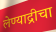
लेण्याद्रीचा